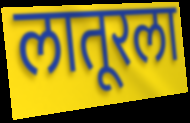
लातूरला